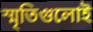
স্মৃতিগুলোই